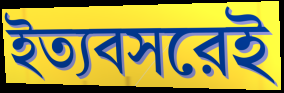
ইত্যবসরেই